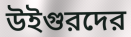
উইগুরদের